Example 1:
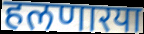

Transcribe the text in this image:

हलणारया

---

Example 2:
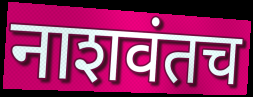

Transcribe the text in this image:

नाशवंतच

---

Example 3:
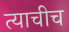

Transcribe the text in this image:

त्याचीच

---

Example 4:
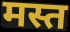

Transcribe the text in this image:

मस्त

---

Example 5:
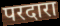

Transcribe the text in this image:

परदारा